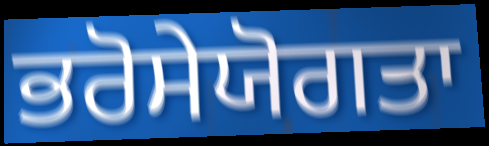
ਭਰੋਸੇਯੋਗਤਾ